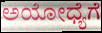
ಅಯೋಧ್ಯೆಗೆ